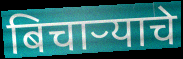
बिचाऱ्याचे